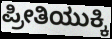
ಪ್ರೀತಿಯುಕ್ಕಿ